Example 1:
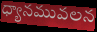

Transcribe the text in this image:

ధ్యానమువలన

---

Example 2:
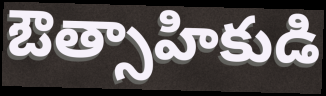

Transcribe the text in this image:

ఔత్సాహికుడి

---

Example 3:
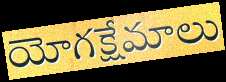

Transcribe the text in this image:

యోగక్షేమాలు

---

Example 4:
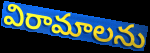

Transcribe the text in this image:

విరామాలను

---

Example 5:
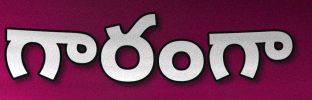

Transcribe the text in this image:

గారంగా